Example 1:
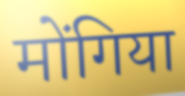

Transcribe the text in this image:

मोंगिया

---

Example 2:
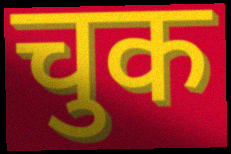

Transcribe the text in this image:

चुक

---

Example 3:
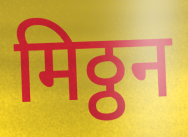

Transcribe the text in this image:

मिठ्ठन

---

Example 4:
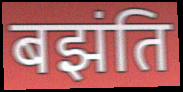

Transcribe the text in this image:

बझंति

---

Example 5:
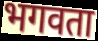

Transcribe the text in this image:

भगवता